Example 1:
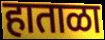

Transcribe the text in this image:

हाताळा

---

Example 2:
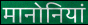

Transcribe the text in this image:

मानोनियां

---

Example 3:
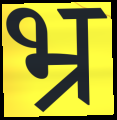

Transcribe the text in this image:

भ्र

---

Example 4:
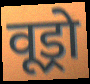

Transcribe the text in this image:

वूड्रो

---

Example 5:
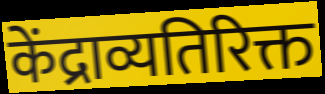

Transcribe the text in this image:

केंद्राव्यतिरिक्त